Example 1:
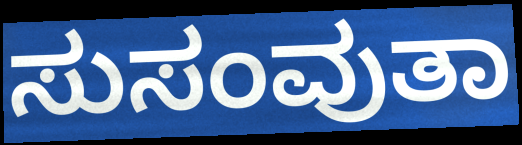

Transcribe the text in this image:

ಸುಸಂವುತಾ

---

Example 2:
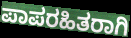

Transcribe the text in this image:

ಪಾಪರಹಿತರಾಗಿ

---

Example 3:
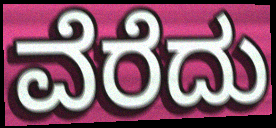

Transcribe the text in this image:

ವೆರೆದು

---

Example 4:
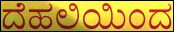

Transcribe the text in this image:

ದೆಹಲಿಯಿಂದ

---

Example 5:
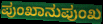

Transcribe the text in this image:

ಪುಂಖಾನುಪುಂಖ